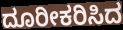
ದೂರೀಕರಿಸಿದ